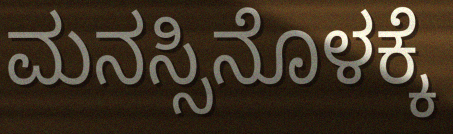
ಮನಸ್ಸಿನೊಳಕ್ಕೆ